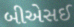
બીએસઈ